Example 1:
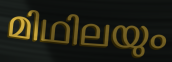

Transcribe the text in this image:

മിഥിലയും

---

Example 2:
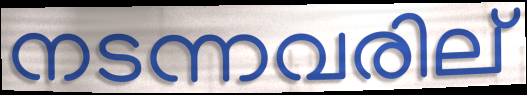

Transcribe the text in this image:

നടന്നവരില്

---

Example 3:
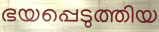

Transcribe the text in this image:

ഭയപ്പെടുത്തിയ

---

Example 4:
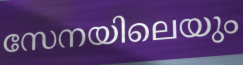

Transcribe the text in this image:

സേനയിലെയും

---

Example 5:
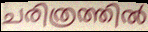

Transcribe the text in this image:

ചരിത്രത്തിൽ